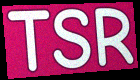
TSR